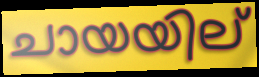
ചായയില്